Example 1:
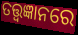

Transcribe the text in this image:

ତତ୍ତ୍ୱଜ୍ଞାନରେ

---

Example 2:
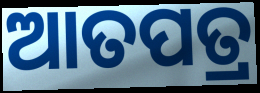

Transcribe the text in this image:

ଆତପତ୍ର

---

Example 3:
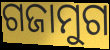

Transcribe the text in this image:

ଗଜାମୁଗ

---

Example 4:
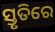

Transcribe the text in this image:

ସ୍ତୃତିରେ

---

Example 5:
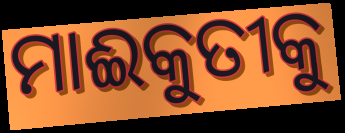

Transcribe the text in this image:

ମାଈକୁତୀକୁ